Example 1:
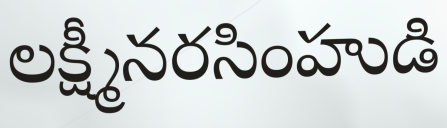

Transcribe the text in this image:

లక్ష్మీనరసింహుడి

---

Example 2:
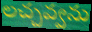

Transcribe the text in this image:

లచ్చవ్వను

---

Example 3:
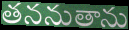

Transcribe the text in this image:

తననుతాను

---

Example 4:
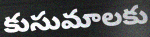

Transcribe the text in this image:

కుసుమాలకు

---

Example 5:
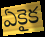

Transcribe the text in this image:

ఏకైక